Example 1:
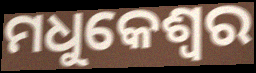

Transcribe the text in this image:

ମଧୁକେଶ୍ୱର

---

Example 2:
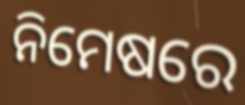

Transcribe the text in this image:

ନିମେଷରେ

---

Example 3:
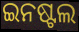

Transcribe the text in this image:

ଇନଷ୍ଟଲ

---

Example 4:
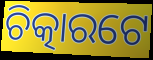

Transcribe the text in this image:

ଚିତ୍କାରଟେ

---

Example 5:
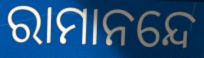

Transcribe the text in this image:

ରାମାନନ୍ଦେ